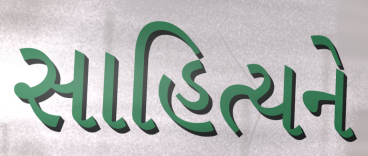
સાહિત્યને